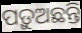
ପଡ଼ୁଅଛନ୍ତି